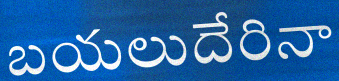
బయలుదేరినా